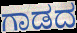
ಗಾಡದ